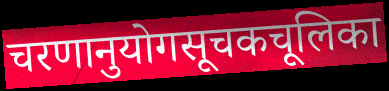
चरणानुयोगसूचकचूलिका